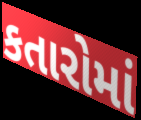
કતારોમાં